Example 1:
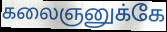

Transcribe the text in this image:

கலைஞனுக்கே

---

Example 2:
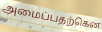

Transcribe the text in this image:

அமைப்பதற்கென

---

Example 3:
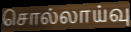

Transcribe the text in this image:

சொல்லாய்வு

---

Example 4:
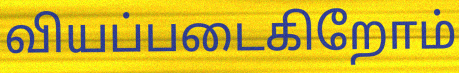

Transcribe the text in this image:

வியப்படைகிறோம்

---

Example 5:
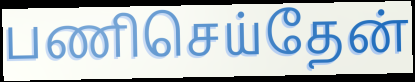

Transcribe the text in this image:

பணிசெய்தேன்